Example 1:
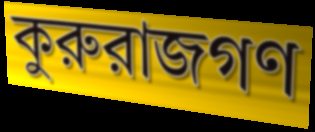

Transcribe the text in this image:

কুরুরাজগণ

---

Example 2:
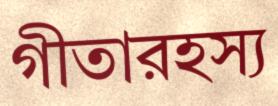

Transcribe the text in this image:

গীতারহস্য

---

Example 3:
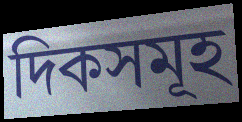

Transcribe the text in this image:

দিকসমূহ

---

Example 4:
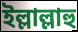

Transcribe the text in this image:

ইল্লাল্লাহু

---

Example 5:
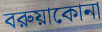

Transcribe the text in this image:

বরুয়াকোনা